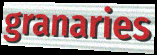
granaries